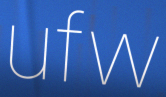
ufw